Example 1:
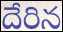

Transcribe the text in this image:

దేరిన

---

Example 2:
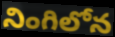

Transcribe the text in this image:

నింగిలోన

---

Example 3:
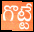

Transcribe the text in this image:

గొట్టే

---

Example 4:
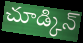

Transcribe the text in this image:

చూడ్కిన్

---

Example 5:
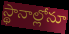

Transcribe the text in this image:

స్థానాల్లోనూ